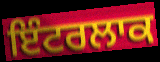
ਇੰਟਰਲਾਕ